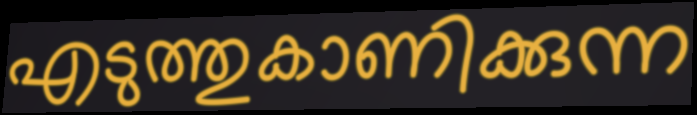
എടുത്തുകാണിക്കുന്ന